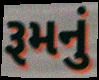
રૂમનું